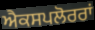
ਐਕਸਪਲੋਰਰਾਂ